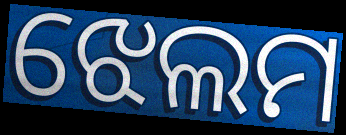
ଝେଲମ